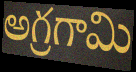
అగ్రగామి